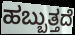
ಹಬ್ಬುತ್ತದೆ